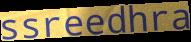
ssreedhra